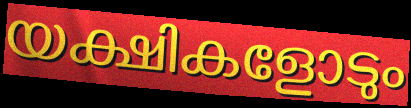
യക്ഷികളോടും